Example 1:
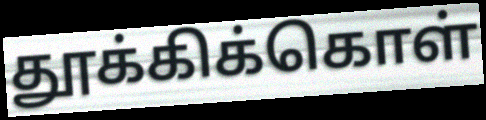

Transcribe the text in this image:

தூக்கிக்கொள்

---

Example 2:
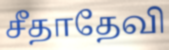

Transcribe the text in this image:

சீதாதேவி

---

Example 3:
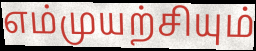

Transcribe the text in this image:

எம்முயற்சியும்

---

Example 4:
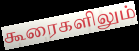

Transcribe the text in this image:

கூரைகளிலும்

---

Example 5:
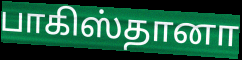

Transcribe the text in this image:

பாகிஸ்தானா